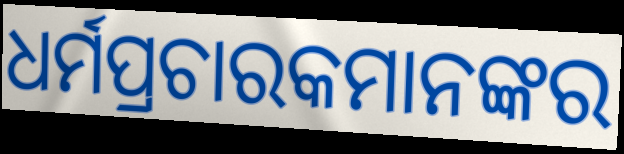
ଧର୍ମପ୍ରଚାରକମାନଙ୍କର